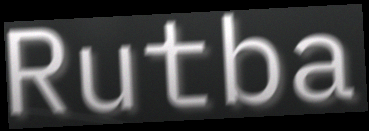
Rutba